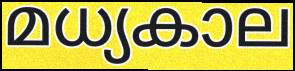
മധ്യകാല